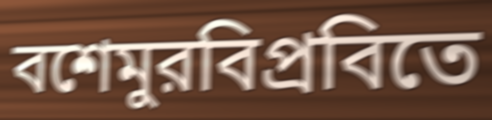
বশেমুরবিপ্রবিতে